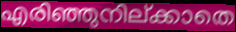
എരിഞ്ഞുനില്ക്കാതെ